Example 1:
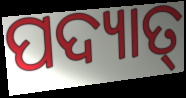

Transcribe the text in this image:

ପଦ୍ୟାତ୍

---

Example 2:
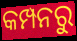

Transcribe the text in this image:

କମ୍ପନରୁ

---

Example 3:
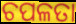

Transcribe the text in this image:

ଚପଳତା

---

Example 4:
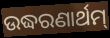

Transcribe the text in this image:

ଉଦ୍ଧରଣାର୍ଥମ୍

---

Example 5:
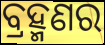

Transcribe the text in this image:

ବ୍ରହ୍ମଣର